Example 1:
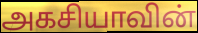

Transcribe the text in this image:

அகசியாவின்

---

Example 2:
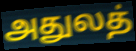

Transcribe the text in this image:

அதுலத்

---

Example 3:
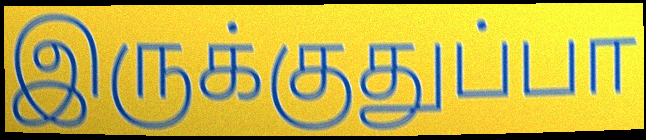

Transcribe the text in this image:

இருக்குதுப்பா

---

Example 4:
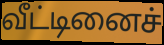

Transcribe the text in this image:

வீட்டினைச்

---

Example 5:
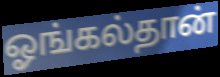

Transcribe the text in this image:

ஓங்கல்தான்